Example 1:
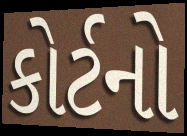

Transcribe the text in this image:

કોર્ટનો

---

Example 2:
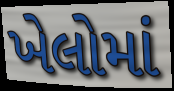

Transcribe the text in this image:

ખેલોમાં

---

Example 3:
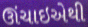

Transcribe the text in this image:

ઊંચાઇએથી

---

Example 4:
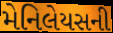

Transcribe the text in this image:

મેનિલેયસની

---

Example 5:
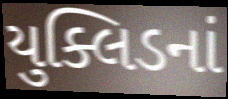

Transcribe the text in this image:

યુક્લિડનાં